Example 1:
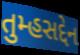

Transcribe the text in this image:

તુમ્હસદ્દેન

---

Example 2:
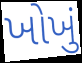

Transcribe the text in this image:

ખોખું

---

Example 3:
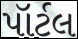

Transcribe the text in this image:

પૉર્ટલ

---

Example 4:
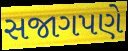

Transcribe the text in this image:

સજાગપણે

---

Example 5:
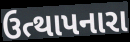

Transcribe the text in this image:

ઉત્થાપનારા